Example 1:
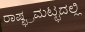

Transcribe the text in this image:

ರಾಷ್ಟ್ರಮಟ್ಟದಲ್ಲಿ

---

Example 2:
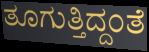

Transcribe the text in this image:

ತೂಗುತ್ತಿದ್ದಂತೆ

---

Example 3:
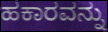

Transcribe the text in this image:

ಹಕಾರವನ್ನು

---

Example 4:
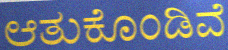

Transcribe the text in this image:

ಆತುಕೊಂಡಿವೆ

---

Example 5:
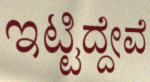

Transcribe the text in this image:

ಇಟ್ಟಿದ್ದೇವೆ